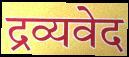
द्रव्यवेद